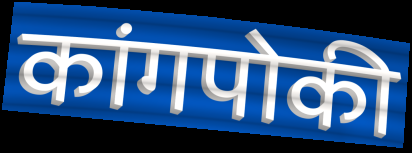
कांगपोकी